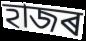
হাজৰ